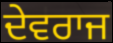
ਦੇਵਰਾਜ